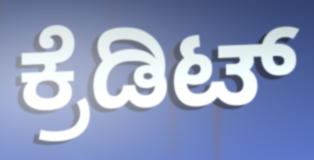
ಕ್ರೆಡಿಟ್